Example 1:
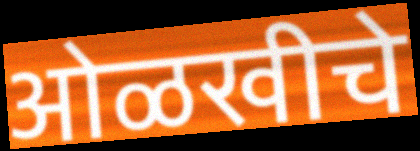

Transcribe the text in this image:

ओळखीचे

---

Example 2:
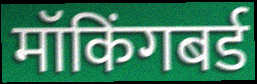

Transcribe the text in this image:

मॉकिंगबर्ड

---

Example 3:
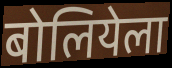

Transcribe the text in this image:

बोलियेला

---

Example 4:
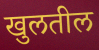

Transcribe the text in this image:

खुलतील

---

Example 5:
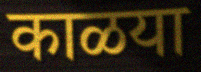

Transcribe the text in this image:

काळया